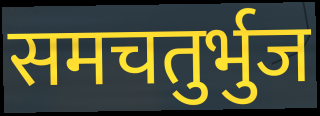
समचतुर्भुज